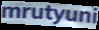
mrutyuni